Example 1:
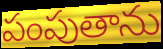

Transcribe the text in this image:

పంపుతాను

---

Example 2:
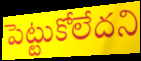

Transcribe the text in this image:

పెట్టుకోలేదని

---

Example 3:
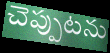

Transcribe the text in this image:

చెప్పుటను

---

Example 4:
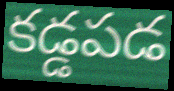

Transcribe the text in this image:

కడ్డపడ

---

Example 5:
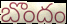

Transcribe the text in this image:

బొందం